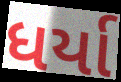
ધર્યા